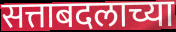
सत्ताबदलाच्या